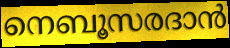
നെബൂസരദാൻ